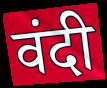
वंदी